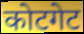
कोटगेट